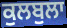
ਕੁਲਬੁਲਾ